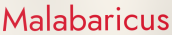
Malabaricus